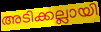
അടിക്കല്ലായി